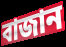
বাজান